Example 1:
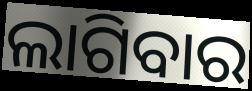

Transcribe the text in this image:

ଲାଗିବାର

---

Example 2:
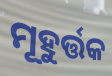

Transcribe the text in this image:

ମୂହୁର୍ତ୍ତକ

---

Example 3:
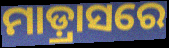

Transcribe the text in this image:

ମାଡ଼୍ରାସରେ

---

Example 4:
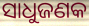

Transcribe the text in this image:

ସାଧୁଜଣକ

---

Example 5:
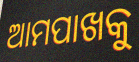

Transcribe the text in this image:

ଆମପାଖକୁ